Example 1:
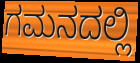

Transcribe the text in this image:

ಗಮನದಲ್ಲಿ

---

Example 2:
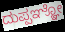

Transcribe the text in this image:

ದುಪ್ಪಞ್ಞೋ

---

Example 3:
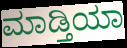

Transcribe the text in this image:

ಮಾಡ್ತಿಯಾ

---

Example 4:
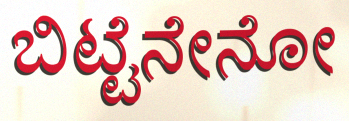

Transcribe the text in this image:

ಬಿಟ್ಟೆನೇನೋ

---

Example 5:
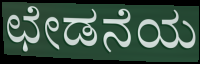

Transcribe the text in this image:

ಛೇಡನೆಯ